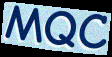
MQC